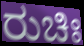
ರುಚಿಃ